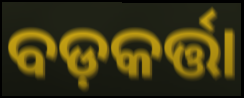
ବଡ଼କର୍ତ୍ତା